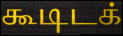
கூடிடக்